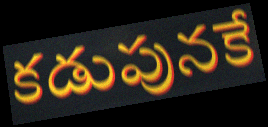
కడుపునకే